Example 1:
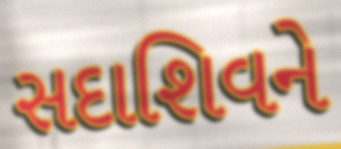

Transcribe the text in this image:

સદાશિવને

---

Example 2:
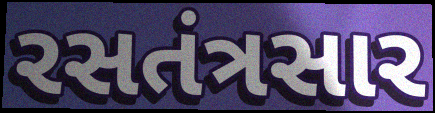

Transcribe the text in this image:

રસતંત્રસાર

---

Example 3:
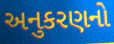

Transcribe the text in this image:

અનુકરણનો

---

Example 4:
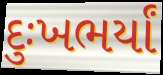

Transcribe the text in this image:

દુઃખભર્યાં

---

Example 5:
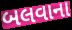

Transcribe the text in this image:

બલવાના